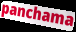
panchama